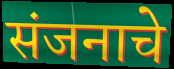
संजनाचे